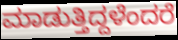
ಮಾಡುತ್ತಿದ್ದಳೆಂದರೆ